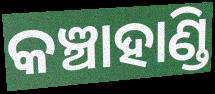
କଞ୍ଚାହାଣ୍ଡି